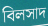
বিলসাদ